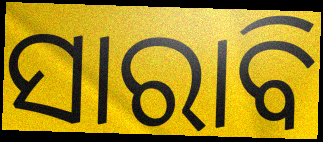
ସାରାବି